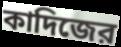
কাদিজের